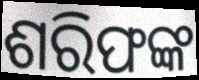
ଶରିଫଙ୍କ